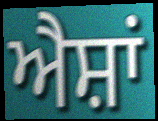
ਐਸ਼ਾਂ